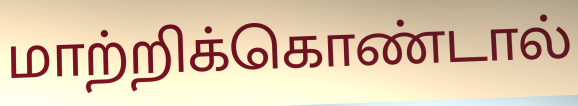
மாற்றிக்கொண்டால்